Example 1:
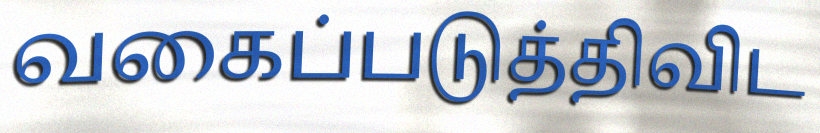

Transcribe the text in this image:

வகைப்படுத்திவிட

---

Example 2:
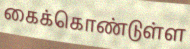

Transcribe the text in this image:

கைக்கொண்டுள்ள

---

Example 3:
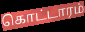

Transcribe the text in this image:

கொட்டாரம்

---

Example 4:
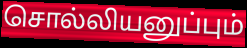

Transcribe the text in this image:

சொல்லியனுப்பும்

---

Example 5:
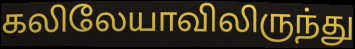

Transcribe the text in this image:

கலிலேயாவிலிருந்து